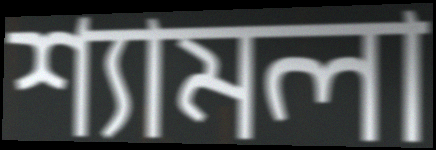
শ্যামলা